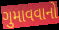
ગુમાવવાનો